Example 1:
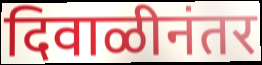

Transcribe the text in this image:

दिवाळीनंतर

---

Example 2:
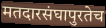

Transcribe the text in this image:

मतदारसंघापुरतेच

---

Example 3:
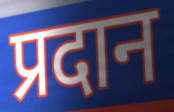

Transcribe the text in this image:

प्रदान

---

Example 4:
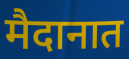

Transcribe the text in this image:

मैदानात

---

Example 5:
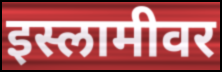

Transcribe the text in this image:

इस्लामीवर